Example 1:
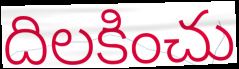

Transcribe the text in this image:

దిలకించు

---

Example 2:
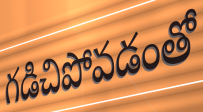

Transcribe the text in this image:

గడిచిపోవడంతో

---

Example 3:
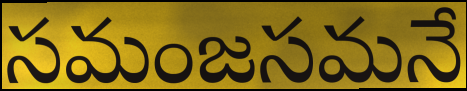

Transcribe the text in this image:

సమంజసమనే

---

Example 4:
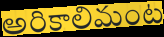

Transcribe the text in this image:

అరికాలిమంట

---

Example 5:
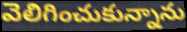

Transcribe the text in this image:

వెలిగించుకున్నాను